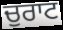
ਚੁਰਾਟ